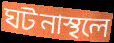
ঘটনাস্থলে